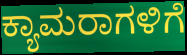
ಕ್ಯಾಮರಾಗಳಿಗೆ